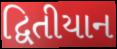
દ્વિતીયાન